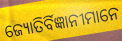
ଜ୍ୟୋତିର୍ବିଜ୍ଞାନୀମାନେ